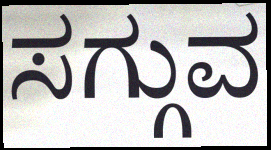
ಸಗ್ಗುವ